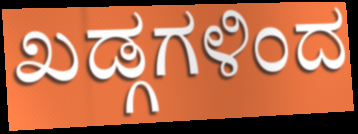
ಖಡ್ಗಗಳಿಂದ